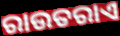
ରାଉତରାଏ